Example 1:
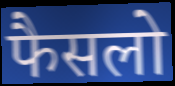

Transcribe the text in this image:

फैसलो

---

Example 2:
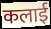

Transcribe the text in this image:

कलाई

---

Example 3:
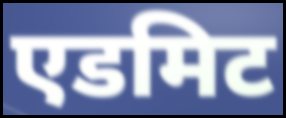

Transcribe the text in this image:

एडमिट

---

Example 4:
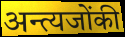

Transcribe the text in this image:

अन्त्यजोंकी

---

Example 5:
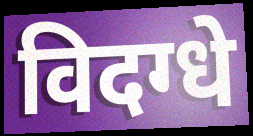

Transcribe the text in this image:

विदग्धे